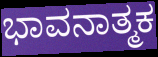
ಭಾವನಾತ್ಮಕ